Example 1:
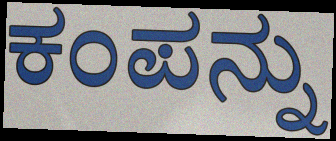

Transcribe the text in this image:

ಕಂಪನ್ನು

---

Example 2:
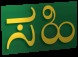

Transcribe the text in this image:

ಸಹಿ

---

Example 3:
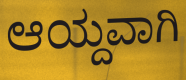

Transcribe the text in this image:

ಆಯ್ದವಾಗಿ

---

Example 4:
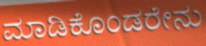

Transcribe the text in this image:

ಮಾಡಿಕೊಂಡರೇನು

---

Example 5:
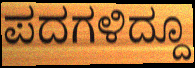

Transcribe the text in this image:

ಪದಗಳಿದ್ದೂ